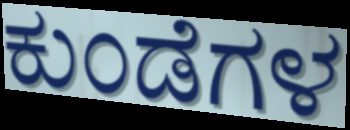
ಕುಂಡೆಗಳ